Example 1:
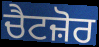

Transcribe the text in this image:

ਚੈਟਜ਼ੋਰ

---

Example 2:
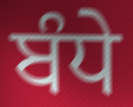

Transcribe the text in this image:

ਬੰਧੇ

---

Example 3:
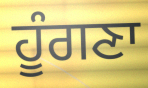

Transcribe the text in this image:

ਹੂੰਗਣਾ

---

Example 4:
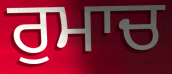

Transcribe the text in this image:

ਰੁਮਾਚ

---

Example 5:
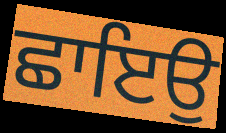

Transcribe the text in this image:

ਛਾਇਉ